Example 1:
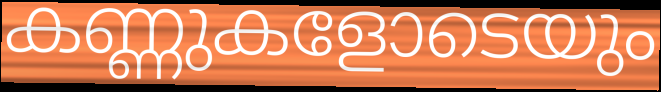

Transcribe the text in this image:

കണ്ണുകളോടെയും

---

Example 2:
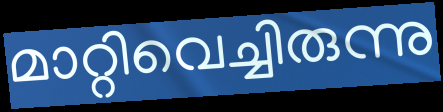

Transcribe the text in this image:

മാറ്റിവെച്ചിരുന്നു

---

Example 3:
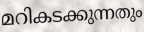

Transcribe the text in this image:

മറികടക്കുന്നതും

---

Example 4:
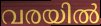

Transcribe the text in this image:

വരയിൽ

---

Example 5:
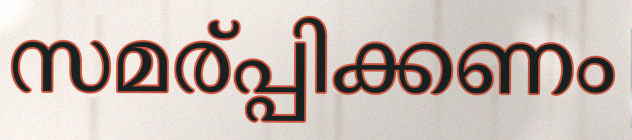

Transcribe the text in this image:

സമര്പ്പിക്കണം